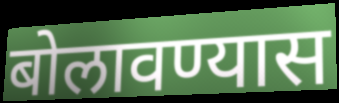
बोलावण्यास